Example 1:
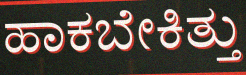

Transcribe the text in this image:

ಹಾಕಬೇಕಿತ್ತು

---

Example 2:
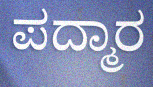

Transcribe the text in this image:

ಪದ್ಮಾರ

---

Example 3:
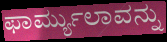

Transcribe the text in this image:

ಫಾರ್ಮ್ಯುಲಾವನ್ನು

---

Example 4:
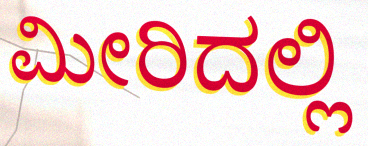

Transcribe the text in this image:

ಮೀರಿದಲ್ಲಿ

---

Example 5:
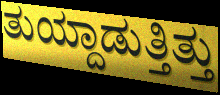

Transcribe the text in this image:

ತುಯ್ದಾಡುತ್ತಿತ್ತು